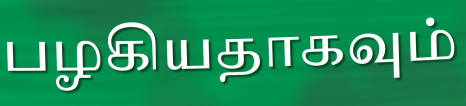
பழகியதாகவும்